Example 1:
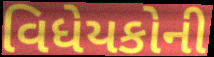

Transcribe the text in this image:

વિધેયકોની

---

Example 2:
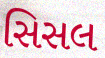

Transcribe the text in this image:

સિસલ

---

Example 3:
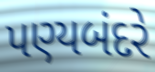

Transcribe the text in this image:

પણ્યબંદરે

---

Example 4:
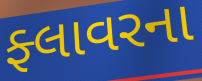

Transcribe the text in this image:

ફ્લાવરના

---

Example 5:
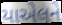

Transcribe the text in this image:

યાએલને